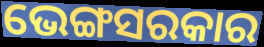
ଭେଙ୍ଗସରକାର